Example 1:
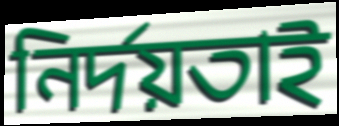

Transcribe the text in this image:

নির্দয়তাই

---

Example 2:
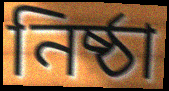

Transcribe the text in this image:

নিষ্ঠা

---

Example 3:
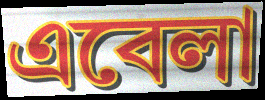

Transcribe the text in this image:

এবেলা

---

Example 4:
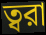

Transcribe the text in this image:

ত্বরা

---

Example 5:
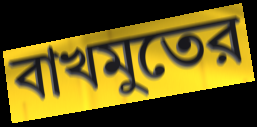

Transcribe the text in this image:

বাখমুতের